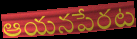
ఆయనపేరట